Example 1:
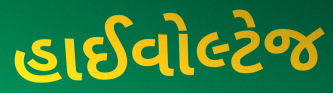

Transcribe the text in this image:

હાઈવોલ્ટેજ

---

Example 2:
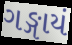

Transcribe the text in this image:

ગઙ્ગાયં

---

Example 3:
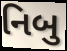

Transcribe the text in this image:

નિબુ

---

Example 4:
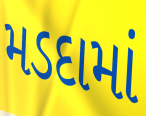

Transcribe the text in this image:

મડદામાં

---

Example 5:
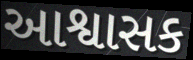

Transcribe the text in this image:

આશ્વાસક